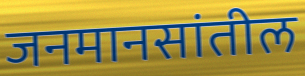
जनमानसांतील